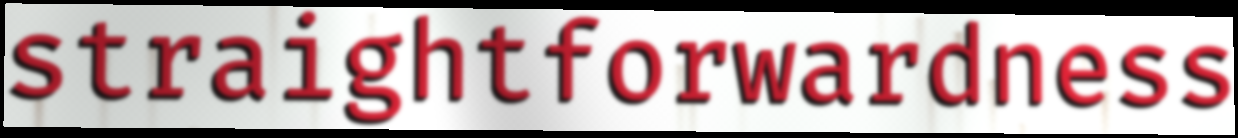
straightforwardness